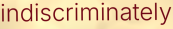
indiscriminately